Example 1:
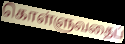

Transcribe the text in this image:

கொள்ளுவதைப்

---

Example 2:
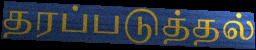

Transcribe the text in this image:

தரப்படுத்தல்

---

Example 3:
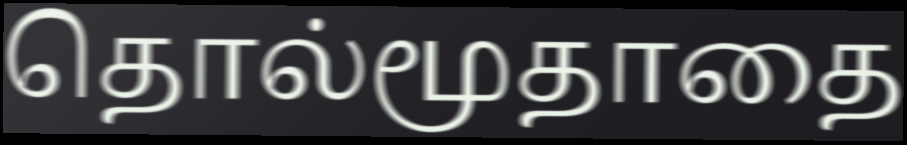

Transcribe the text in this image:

தொல்மூதாதை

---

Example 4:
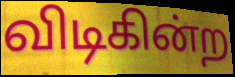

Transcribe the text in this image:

விடிகின்ற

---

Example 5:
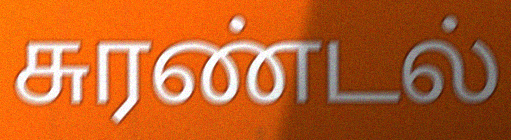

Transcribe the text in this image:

சுரண்டல்